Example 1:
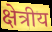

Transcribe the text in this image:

क्षेत्रीय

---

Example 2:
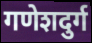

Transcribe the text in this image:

गणेशदुर्ग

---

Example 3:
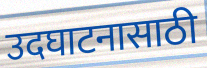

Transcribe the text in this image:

उदघाटनासाठी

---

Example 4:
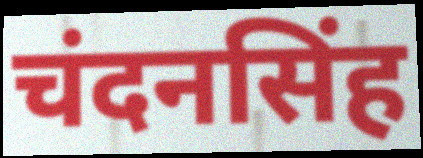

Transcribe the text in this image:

चंदनसिंह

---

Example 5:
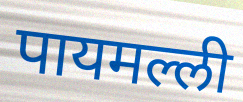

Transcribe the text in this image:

पायमल्ली